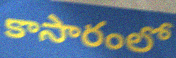
కాసారంలో